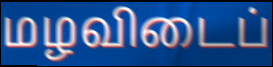
மழவிடைப்